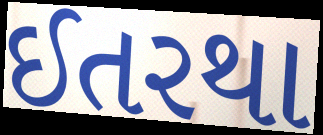
ઈતરથા